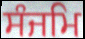
ਸੰਜਮਿ